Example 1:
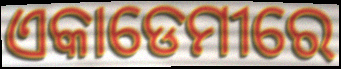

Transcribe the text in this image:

ଏକାଡେମୀରେ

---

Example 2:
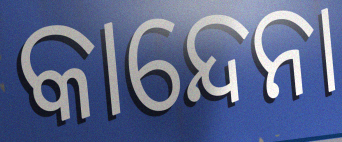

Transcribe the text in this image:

କାନ୍ଦେନା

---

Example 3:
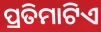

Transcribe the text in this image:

ପ୍ରତିମାଟିଏ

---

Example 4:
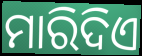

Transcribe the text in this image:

ମାରିଦିଏ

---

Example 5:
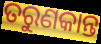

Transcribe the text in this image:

ତରୁଣକାନ୍ତ